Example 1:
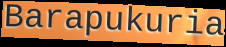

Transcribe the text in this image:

Barapukuria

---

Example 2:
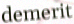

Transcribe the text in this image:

demerit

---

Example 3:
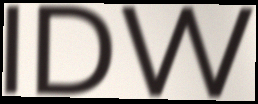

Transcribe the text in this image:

IDW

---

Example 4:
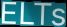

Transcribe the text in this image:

ELTs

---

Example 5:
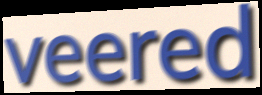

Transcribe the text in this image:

veered